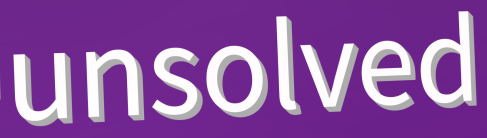
unsolved